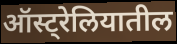
ऑस्ट्रेलियातील